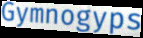
Gymnogyps